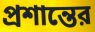
প্রশান্তের